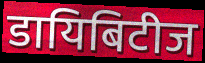
डायिबिटीज